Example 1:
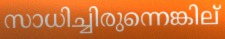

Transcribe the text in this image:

സാധിച്ചിരുന്നെങ്കില്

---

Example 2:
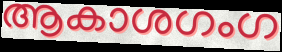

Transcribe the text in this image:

ആകാശഗംഗ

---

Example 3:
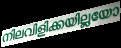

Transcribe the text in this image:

നിലവിളിക്കയില്ലയോ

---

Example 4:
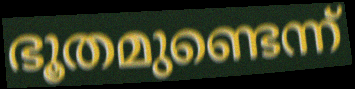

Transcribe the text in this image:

ഭൂതമുണ്ടെന്ന്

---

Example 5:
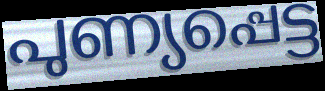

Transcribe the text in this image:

പുണ്യപ്പെട്ട